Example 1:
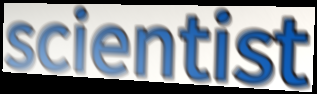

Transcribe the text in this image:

scientist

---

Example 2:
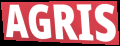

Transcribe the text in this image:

AGRIS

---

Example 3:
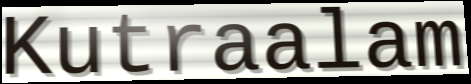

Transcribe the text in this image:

Kutraalam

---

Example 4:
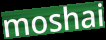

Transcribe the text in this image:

moshai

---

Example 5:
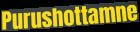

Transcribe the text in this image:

Purushottamne